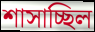
শাসাচ্ছিল